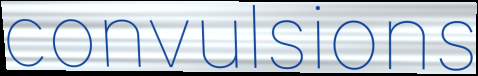
convulsions